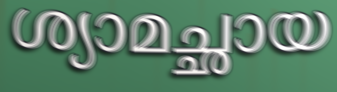
ശ്യാമച്ഛായ